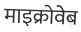
माइक्रोवेब